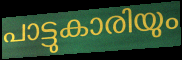
പാട്ടുകാരിയും